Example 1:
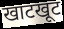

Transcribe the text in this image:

खाटखूट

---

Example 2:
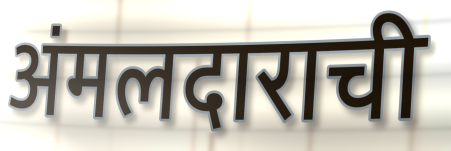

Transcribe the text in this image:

अंमलदाराची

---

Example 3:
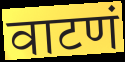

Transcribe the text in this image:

वाटणं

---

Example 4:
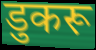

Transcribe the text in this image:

डुकरू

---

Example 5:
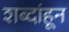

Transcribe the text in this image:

शब्दांहून